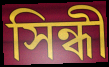
সিন্ধী